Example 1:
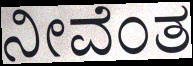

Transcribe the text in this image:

ನೀವೆಂತ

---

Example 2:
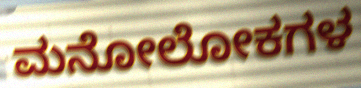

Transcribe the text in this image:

ಮನೋಲೋಕಗಳ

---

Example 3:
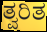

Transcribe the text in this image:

ತ್ವರಿತ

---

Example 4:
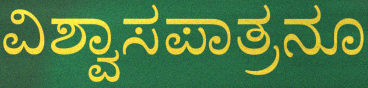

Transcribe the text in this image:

ವಿಶ್ವಾಸಪಾತ್ರನೂ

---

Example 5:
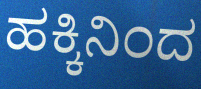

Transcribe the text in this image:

ಹಕ್ಕಿನಿಂದ